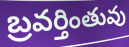
బ్రవర్తింతువు